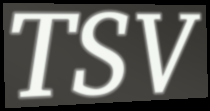
TSV